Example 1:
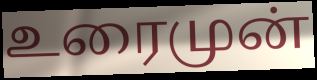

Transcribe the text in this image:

உரைமுன்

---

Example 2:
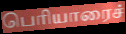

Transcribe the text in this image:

பெரியாரைச்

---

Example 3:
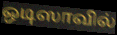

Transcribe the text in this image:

ஒடிஸாவில்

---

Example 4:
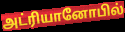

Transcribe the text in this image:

அட்ரியானோபில்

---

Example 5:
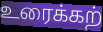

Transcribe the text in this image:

உரைக்கற்